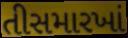
તીસમારખાં